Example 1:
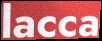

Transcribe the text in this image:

lacca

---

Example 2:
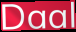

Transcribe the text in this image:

Daal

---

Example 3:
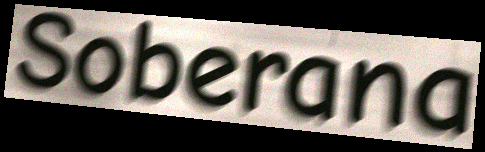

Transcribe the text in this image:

Soberana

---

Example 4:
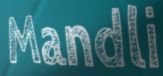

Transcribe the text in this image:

Mandli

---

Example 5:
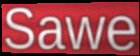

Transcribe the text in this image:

Sawe